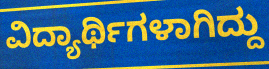
ವಿದ್ಯಾರ್ಥಿಗಳಾಗಿದ್ದು